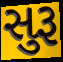
સુરૂ